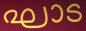
ഘാട